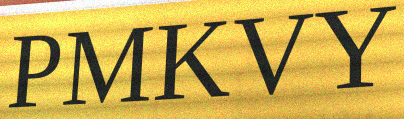
PMKVY